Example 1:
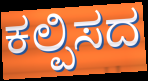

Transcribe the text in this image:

ಕಲ್ಪಿಸದ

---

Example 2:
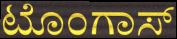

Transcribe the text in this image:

ಟೊಂಗಾಸ್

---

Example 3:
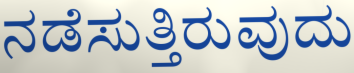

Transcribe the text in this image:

ನಡೆಸುತ್ತಿರುವುದು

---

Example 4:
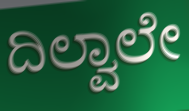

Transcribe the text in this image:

ದಿಲ್ವಾಲೇ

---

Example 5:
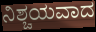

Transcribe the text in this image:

ನಿಶ್ಚಯವಾದ